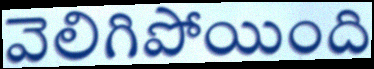
వెలిగిపోయింది